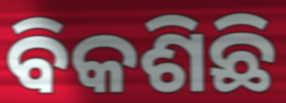
ବିକଶିଛି